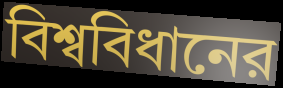
বিশ্ববিধানের